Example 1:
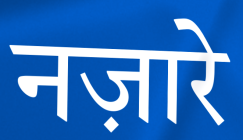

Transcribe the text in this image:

नज़ारे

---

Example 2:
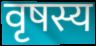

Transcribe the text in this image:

वृषस्य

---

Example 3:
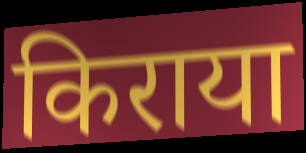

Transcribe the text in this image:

किराया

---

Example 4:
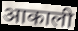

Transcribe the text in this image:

आकाली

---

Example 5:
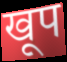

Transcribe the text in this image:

खूप